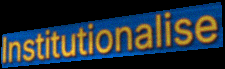
Institutionalise